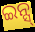
ଇନ୍ସ୍